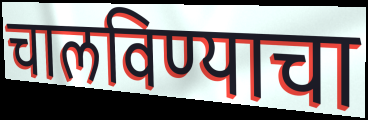
चालविण्याचा